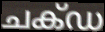
ചക്ഡ